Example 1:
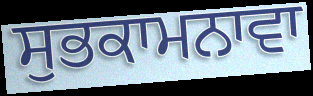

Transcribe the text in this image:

ਸੁਭਕਾਮਨਾਵਾ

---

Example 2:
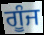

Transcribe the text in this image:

ਗੂੰਜ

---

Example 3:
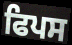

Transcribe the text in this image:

ਫਿਪਸ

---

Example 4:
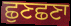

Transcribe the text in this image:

ਛੁਣਛਣਾ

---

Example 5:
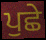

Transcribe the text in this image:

ਪੁਛੇ